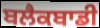
ਬਲੈਕਬਾਡੀ